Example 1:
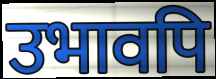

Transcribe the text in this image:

उभावपि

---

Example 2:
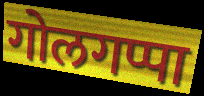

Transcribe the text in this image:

गोलगप्पा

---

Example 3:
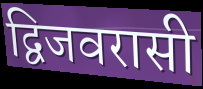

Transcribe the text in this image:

द्विजवरासी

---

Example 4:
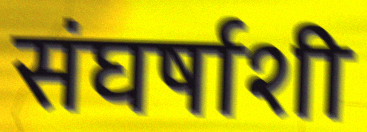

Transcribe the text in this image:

संघर्षाशी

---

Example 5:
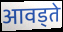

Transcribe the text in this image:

आवड्ते